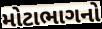
મોટાભાગનો